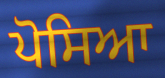
ਪੋਸਿਆ